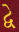
દ્વે